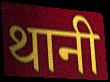
थानी